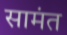
सामंत